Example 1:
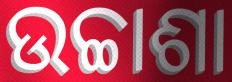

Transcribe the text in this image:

ଉଚ୍ଚାଶା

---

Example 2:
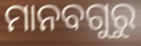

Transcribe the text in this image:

ମାନବଗୁରୁ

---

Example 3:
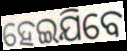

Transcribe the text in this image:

ହେଇଯିବେ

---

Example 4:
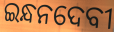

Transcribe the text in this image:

ଇନ୍ଧନଦେବୀ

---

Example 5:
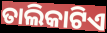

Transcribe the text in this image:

ତାଲିକାଟିଏ